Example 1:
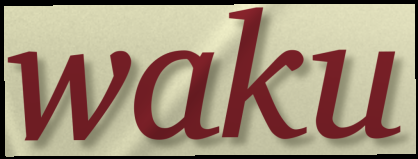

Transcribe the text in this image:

waku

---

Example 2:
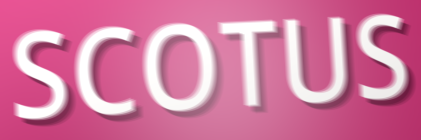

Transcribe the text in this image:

SCOTUS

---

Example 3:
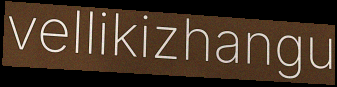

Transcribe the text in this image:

vellikizhangu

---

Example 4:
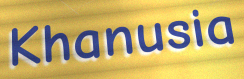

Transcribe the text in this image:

Khanusia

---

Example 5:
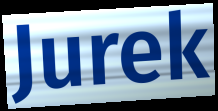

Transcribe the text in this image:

Jurek